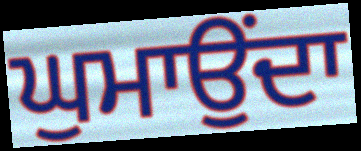
ਘੁਮਾਉਂਦਾ